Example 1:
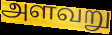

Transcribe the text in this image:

அளவறு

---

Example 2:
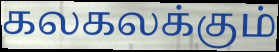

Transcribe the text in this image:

கலகலக்கும்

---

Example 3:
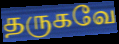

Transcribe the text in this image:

தருகவே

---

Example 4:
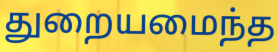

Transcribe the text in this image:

துறையமைந்த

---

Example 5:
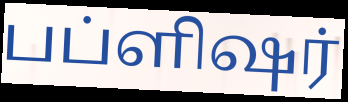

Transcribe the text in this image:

பப்ளிஷர்